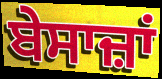
ਬੇਸਾਜ਼ਾਂ